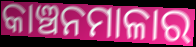
କାଞ୍ଚନମାଳାର